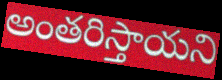
అంతరిస్తాయని